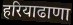
हरियाढाणा